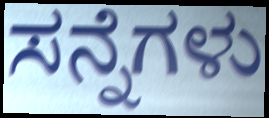
ಸನ್ನೆಗಳು